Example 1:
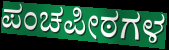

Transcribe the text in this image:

ಪಂಚಪೀಠಗಳ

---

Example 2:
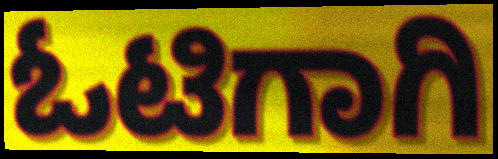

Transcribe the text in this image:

ಓಟಿಗಾಗಿ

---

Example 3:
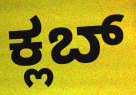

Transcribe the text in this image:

ಕ್ಲಬ್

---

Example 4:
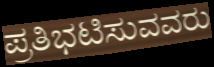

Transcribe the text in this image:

ಪ್ರತಿಭಟಿಸುವವರು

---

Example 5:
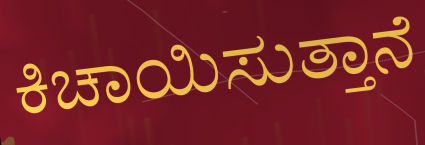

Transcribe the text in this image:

ಕಿಚಾಯಿಸುತ್ತಾನೆ